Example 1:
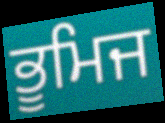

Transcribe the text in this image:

ਭੂਮਿਜ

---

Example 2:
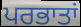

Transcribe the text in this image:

ਪਰਭਾਤਾਂ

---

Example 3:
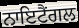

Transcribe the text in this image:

ਨਾਇਟੈਂਗਲ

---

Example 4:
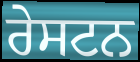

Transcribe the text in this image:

ਰੇਸਟਨ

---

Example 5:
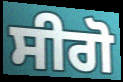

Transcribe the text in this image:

ਸੀਗੋ